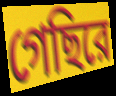
গেছিরে